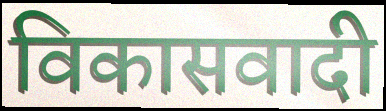
विकासवादी